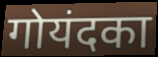
गोयंदका